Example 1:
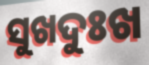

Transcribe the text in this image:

ସୁଖଦୁଃଖ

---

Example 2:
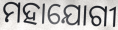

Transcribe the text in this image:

ମହାଯୋଗୀ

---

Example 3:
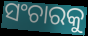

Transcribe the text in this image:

ସଂଚାରକୁ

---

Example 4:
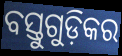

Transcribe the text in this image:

ବସ୍ତୁଗୁଡ଼ିକର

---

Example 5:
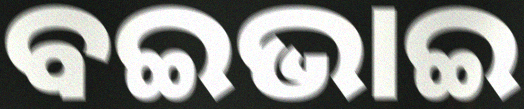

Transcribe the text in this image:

ବଇଭାଇ